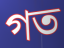
গত